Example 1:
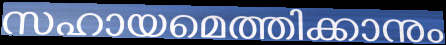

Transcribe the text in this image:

സഹായമെത്തിക്കാനും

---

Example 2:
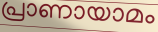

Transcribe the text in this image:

പ്രാണായാമം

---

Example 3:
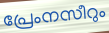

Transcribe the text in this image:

പ്രേംനസീറും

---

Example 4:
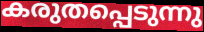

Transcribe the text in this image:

കരുതപ്പെടുന്നു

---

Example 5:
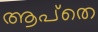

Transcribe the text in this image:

ആപ്‌തെ